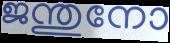
ജന്തുനോ